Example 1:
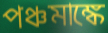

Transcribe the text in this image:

পঞ্চমাঙ্কে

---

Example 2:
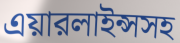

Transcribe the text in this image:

এয়ারলাইন্সসহ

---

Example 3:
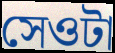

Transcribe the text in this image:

সেওটা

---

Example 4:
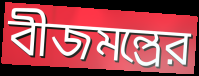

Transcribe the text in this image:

বীজমন্ত্রের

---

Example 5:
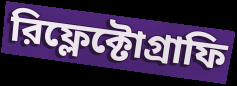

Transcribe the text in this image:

রিফ্লেক্টোগ্রাফি